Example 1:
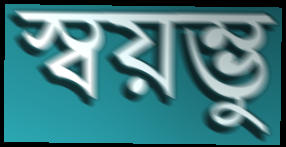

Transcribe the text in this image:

স্বয়ম্ভু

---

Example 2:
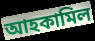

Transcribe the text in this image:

আহকামিল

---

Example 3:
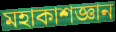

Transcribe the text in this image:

মহাকাশজ্ঞান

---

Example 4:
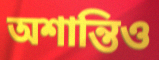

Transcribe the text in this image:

অশান্তিও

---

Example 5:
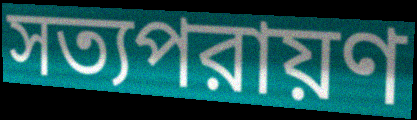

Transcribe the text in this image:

সত্যপরায়ণ